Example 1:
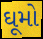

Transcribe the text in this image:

ઘૂમો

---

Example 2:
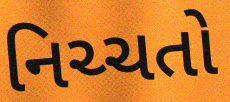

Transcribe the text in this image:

નિચ્ચતો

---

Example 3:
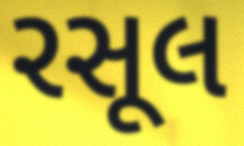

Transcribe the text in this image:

રસૂલ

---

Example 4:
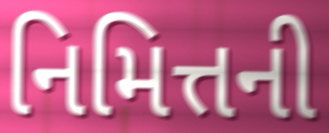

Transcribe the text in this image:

નિમિત્તની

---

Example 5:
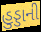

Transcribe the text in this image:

હુડ્ડાની